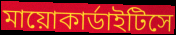
মায়োকার্ডাইটিসে